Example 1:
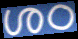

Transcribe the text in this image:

ശഠ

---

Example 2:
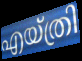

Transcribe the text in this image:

എയ്ത്രി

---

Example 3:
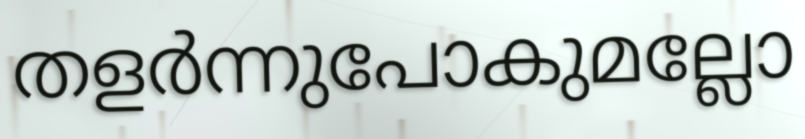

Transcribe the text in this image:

തളർന്നുപോകുമല്ലോ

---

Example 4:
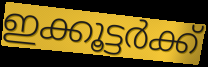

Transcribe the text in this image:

ഇക്കൂട്ടർക്ക്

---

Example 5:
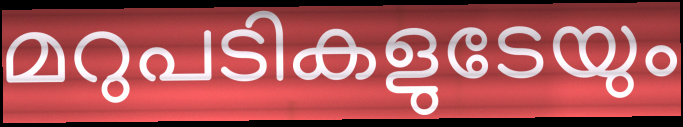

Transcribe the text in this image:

മറുപടികളുടേയും